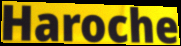
Haroche